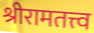
श्रीरामतत्त्व